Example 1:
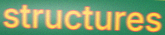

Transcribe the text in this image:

structures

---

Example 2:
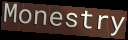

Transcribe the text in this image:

Monestry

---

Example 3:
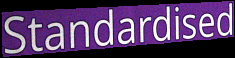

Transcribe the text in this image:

Standardised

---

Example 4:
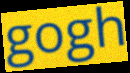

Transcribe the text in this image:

gogh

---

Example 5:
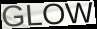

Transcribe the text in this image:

GLOW